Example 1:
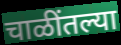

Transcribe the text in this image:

चाळींतल्या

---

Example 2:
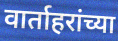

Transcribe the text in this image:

वार्ताहरांच्या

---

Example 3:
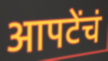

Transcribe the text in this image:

आपटेंचं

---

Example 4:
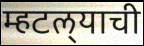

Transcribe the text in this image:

म्हटल्याची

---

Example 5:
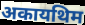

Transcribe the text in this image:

अकायथिम